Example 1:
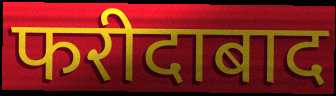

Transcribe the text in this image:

फरीदाबाद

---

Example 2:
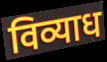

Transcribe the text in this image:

विव्याध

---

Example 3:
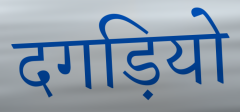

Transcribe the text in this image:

दगड़ियो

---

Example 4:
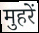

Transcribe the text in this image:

मुहरें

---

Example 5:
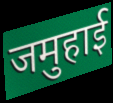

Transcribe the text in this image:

जमुहाई